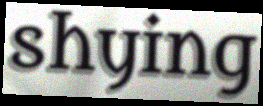
shying